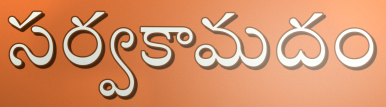
సర్వకామదం